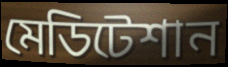
মেডিটেশান